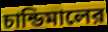
চান্ডিমালের